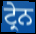
ਟ੍ਰੇਨ